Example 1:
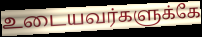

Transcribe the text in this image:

உடையவர்களுக்கே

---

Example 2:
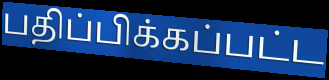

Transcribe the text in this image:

பதிப்பிக்கப்பட்ட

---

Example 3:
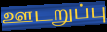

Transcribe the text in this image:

ஊடறுப்பு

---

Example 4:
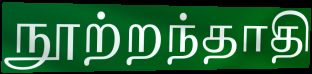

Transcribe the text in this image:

நூற்றந்தாதி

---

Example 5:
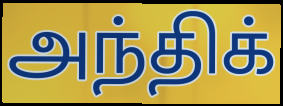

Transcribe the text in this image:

அந்திக்